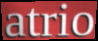
atrio